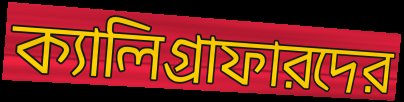
ক্যালিগ্রাফারদের